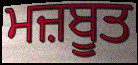
ਮਜ਼ਬੂਤ